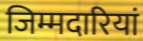
जिम्मदारियां